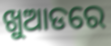
ଖୁଆଡରେ